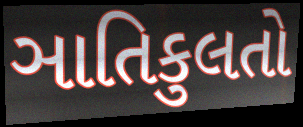
ઞાતિકુલતો